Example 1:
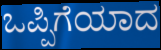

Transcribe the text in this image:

ಒಪ್ಪಿಗೆಯಾದ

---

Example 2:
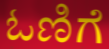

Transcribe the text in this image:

ಓಣಿಗೆ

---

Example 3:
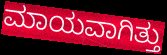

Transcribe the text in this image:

ಮಾಯವಾಗಿತ್ತು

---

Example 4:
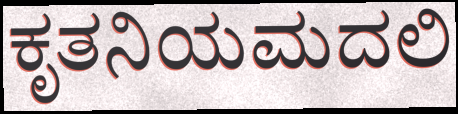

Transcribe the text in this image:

ಕೃತನಿಯಮದಲಿ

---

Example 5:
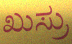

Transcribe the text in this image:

ಖುಸ್ರು